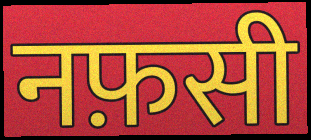
नफ़सी